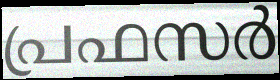
പ്രഫസർ